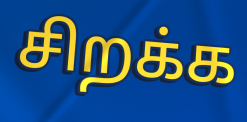
சிறக்க